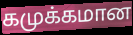
கமுக்கமான